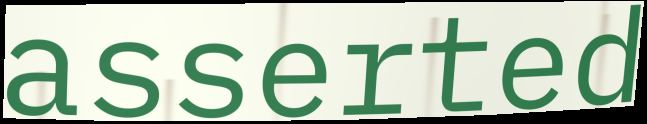
asserted